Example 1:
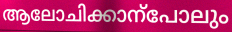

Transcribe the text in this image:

ആലോചിക്കാന്പോലും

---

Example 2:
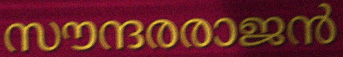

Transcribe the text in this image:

സൗന്ദരരാജൻ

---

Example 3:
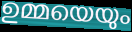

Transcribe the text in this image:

ഉമ്മയെയും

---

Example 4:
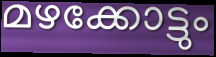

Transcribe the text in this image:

മഴക്കോട്ടും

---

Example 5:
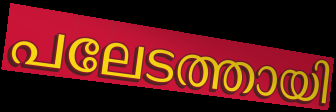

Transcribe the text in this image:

പലേടത്തായി